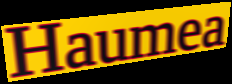
Haumea